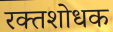
रक्तशोधक